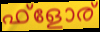
ഫ്ളോര്